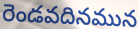
రెండవదినమున